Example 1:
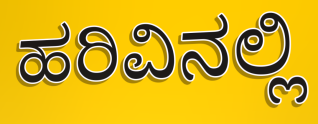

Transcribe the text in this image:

ಹರಿವಿನಲ್ಲಿ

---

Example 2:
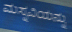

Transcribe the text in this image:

ಮಸ್ನವಿಯನ್ನು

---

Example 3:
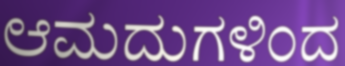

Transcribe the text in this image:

ಆಮದುಗಳಿಂದ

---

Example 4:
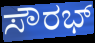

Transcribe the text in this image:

ಸೌರಭ್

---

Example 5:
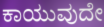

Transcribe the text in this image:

ಕಾಯುವುದೇ